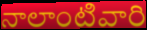
నాలాంటివారి